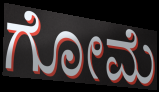
ಗೋಮೆ